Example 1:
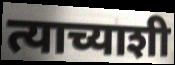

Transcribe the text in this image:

त्याच्याशी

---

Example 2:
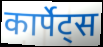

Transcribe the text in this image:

कार्पेट्स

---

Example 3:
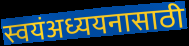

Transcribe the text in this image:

स्वयंअध्ययनासाठी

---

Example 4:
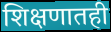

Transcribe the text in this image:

शिक्षणातही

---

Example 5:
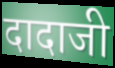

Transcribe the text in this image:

दादाजी